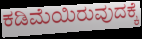
ಕಡಿಮೆಯಿರುವುದಕ್ಕೆ